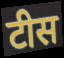
टीस